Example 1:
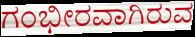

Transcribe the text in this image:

ಗಂಭೀರವಾಗಿರುವ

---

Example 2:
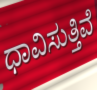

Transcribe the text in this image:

ಧಾವಿಸುತ್ತಿವೆ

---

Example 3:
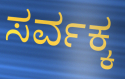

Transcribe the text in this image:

ಸರ್ವಕ್ಕ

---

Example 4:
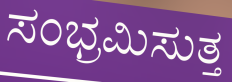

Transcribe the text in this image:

ಸಂಭ್ರಮಿಸುತ್ತ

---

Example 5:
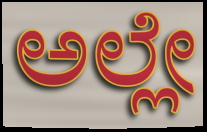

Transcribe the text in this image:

ಅಲ್ಲೇ